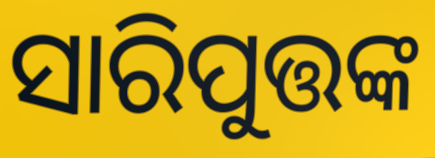
ସାରିପୁତ୍ତଙ୍କ